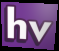
hv